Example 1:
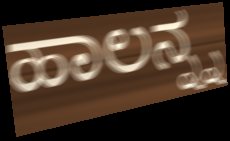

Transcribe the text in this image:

ಹಾಲನ್ನ್ನ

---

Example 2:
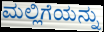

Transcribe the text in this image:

ಮಲ್ಲಿಗೆಯನ್ನು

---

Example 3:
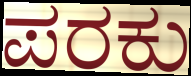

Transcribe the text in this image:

ಪರಕು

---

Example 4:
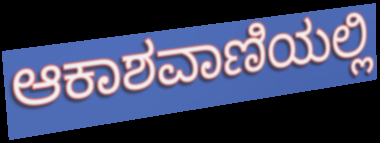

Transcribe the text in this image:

ಆಕಾಶವಾಣಿಯಲ್ಲಿ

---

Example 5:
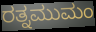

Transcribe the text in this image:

ರತ್ನಮುಮಂ